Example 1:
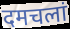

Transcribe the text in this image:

दमचलां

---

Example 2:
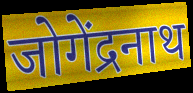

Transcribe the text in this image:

जोगेंद्रनाथ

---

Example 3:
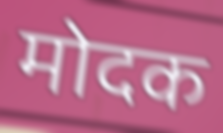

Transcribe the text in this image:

मोदक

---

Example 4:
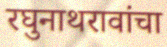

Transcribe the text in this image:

रघुनाथरावांचा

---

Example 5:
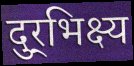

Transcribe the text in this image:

दुर्भिक्ष्य